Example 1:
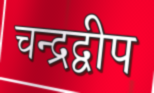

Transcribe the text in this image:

चन्द्रद्वीप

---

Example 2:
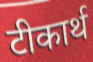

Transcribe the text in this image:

टीकार्थ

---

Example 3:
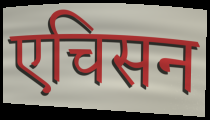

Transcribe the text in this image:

एचिसन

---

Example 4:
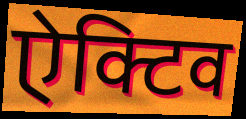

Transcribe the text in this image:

ऐक्टिव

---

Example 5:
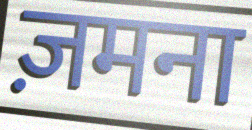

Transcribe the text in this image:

ज़मना